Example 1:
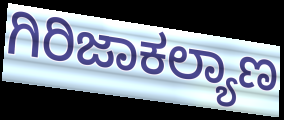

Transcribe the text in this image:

ಗಿರಿಜಾಕಲ್ಯಾಣ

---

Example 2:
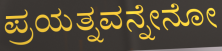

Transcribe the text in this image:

ಪ್ರಯತ್ನವನ್ನೇನೋ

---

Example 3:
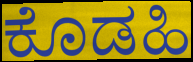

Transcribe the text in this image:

ಕೊಡಹಿ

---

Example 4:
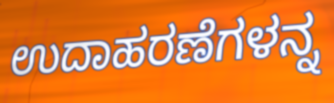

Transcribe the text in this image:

ಉದಾಹರಣೆಗಳನ್ನ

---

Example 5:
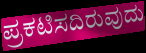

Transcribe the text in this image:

ಪ್ರಕಟಿಸದಿರುವುದು